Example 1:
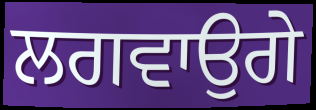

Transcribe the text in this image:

ਲਗਵਾਉਗੇ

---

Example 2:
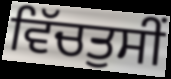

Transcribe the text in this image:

ਵਿੱਚਤੁਸੀਂ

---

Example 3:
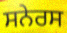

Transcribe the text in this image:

ਸਨੇਰਸ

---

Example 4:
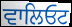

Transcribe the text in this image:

ਵਾਲਿਓਟ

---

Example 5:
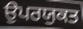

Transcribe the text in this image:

ਉਪਰਯੁਕਤ